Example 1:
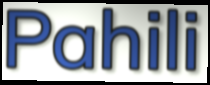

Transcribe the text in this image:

Pahili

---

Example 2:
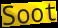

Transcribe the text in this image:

Soot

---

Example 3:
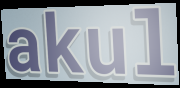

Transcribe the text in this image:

akul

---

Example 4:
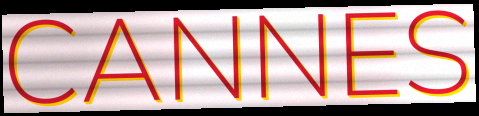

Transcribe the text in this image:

CANNES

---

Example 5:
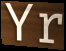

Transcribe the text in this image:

Yr